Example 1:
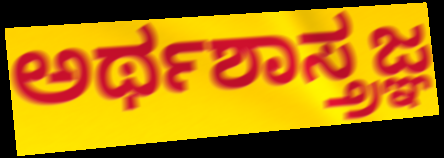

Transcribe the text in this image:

ಅರ್ಥಶಾಸ್ತ್ರಜ್ಞ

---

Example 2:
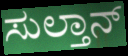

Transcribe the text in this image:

ಸುಲ್ತಾನ್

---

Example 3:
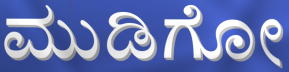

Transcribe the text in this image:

ಮುಡಿಗೋ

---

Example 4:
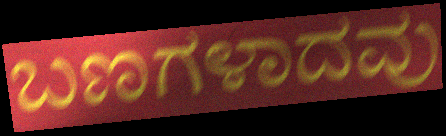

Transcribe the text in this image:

ಬಣಗಳಾದವು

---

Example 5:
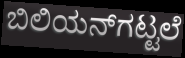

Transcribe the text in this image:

ಬಿಲಿಯನ್‌ಗಟ್ಟಲೆ